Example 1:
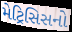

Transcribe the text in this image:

મેટ્રિસિસનો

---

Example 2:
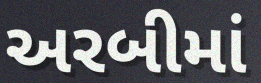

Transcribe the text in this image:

અરબીમાં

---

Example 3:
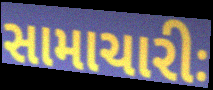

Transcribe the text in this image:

સામાચારીઃ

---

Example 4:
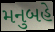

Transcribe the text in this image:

મનુબહે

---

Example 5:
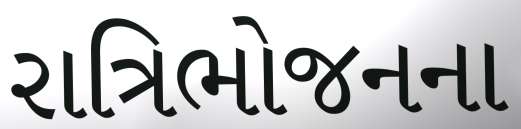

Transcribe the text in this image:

રાત્રિભોજનના